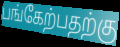
பங்கேற்பதற்கு